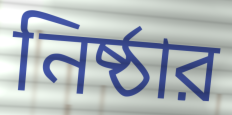
নিষ্ঠার